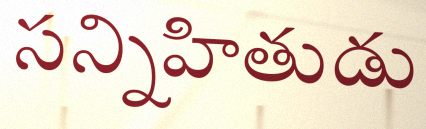
సన్నిహితుడు